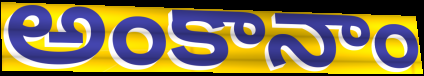
అంకానాం